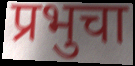
प्रभुचा